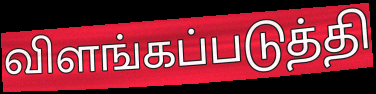
விளங்கப்படுத்தி